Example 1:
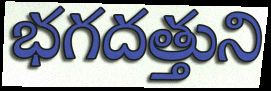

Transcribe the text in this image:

భగదత్తుని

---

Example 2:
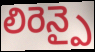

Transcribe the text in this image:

లిరెన్పై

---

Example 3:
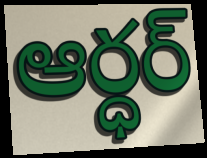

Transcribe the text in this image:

ఆర్ధర్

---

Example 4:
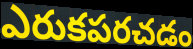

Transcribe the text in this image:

ఎరుకపరచడం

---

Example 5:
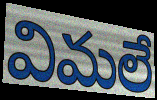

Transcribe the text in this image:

విమలే